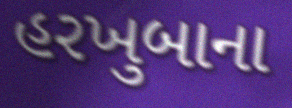
હરખુબાના